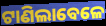
ଟାଣିଲାବେଳେ